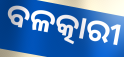
ବଳତ୍କାରୀ